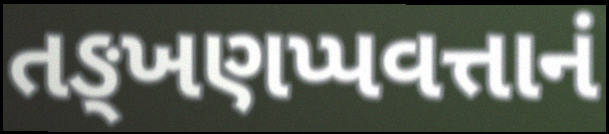
તઙ્ખણપ્પવત્તાનં